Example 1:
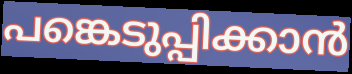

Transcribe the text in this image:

പങ്കെടുപ്പിക്കാൻ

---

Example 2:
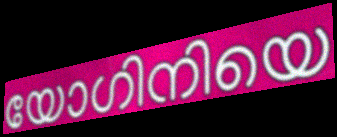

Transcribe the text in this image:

യോഗിനിയെ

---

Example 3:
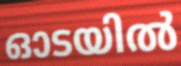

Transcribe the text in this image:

ഓടയിൽ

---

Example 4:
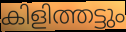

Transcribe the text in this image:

കിളിത്തട്ടും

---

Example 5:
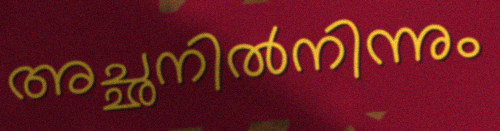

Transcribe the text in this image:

അച്ഛനിൽനിന്നും